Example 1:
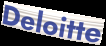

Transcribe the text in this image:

Deloitte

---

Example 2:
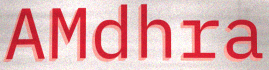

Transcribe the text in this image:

AMdhra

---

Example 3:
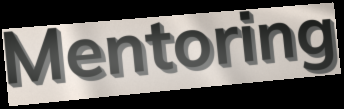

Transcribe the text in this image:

Mentoring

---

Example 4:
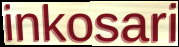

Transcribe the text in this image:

inkosari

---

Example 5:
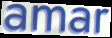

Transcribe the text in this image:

amar